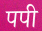
पपी